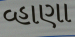
વ્હાણા